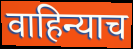
वाहिन्याच